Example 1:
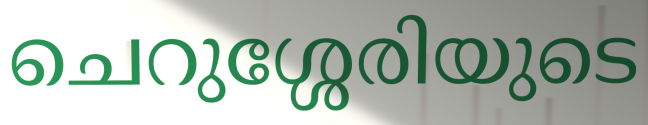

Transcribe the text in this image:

ചെറുശ്ശേരിയുടെ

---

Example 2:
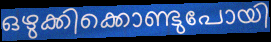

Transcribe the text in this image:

ഒഴുക്കിക്കൊണ്ടുപോയി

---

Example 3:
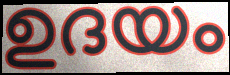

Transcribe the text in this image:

ഉദയം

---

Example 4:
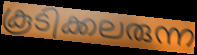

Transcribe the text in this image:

കൂടിക്കലരുന്ന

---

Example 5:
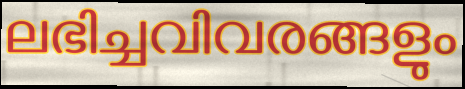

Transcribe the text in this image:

ലഭിച്ചവിവരങ്ങളും